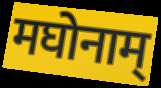
मघोनाम्